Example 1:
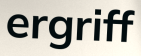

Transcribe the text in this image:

ergriff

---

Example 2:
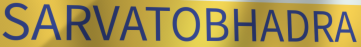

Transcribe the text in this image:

SARVATOBHADRA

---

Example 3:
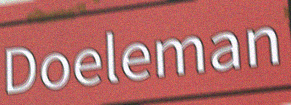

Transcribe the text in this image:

Doeleman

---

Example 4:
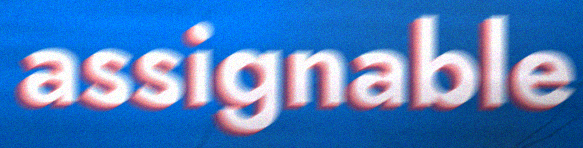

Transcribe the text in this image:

assignable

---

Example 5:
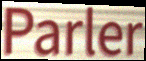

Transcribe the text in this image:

Parler